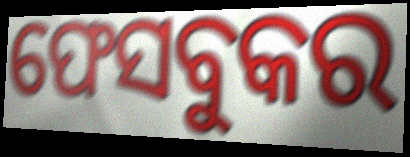
ଫେସବୁକର